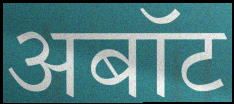
अबॉट